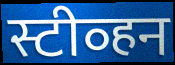
स्टीव्हन